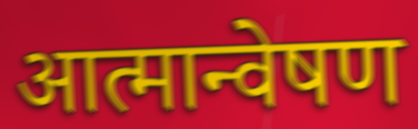
आत्मान्वेषण